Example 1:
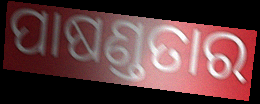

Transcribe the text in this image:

ପାଷଣ୍ଡତାର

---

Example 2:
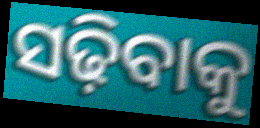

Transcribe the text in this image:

ସଢ଼ିବାକୁ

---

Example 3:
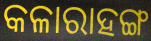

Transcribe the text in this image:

କଳାରାହଙ୍ଗ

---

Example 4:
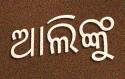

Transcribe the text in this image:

ଆଲିଙ୍କୁ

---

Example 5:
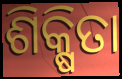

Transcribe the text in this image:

ଶିକ୍ଷିତା